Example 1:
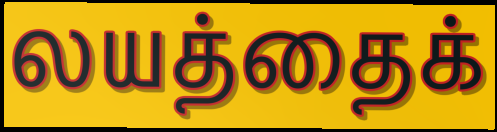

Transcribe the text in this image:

லயத்தைக்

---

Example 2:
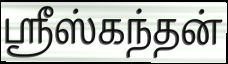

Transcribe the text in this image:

ஸ்ரீஸ்கந்தன்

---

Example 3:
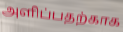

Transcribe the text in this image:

அளிப்பதற்காக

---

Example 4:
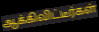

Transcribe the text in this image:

ஆக்கிவிட்டீர்கள்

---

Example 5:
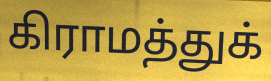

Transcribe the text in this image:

கிராமத்துக்